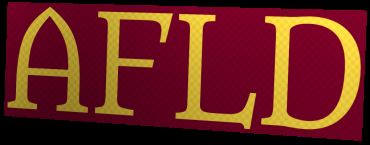
AFLD